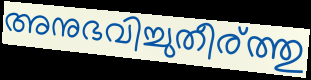
അനുഭവിച്ചുതീര്ത്തു